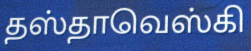
தஸ்தாவெஸ்கி